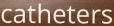
catheters